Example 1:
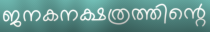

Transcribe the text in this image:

ജനകനക്ഷത്രത്തിന്റെ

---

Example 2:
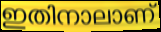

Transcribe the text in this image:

ഇതിനാലാണ്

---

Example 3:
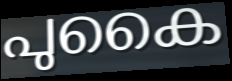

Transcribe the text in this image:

പുകൈ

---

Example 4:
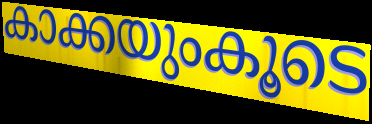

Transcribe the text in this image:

കാക്കയുംകൂടെ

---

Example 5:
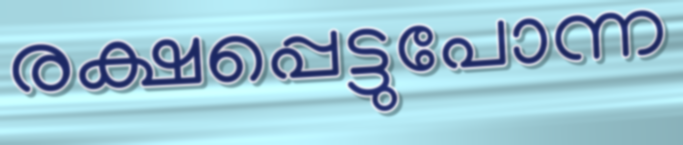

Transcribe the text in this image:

രക്ഷപ്പെട്ടുപോന്ന